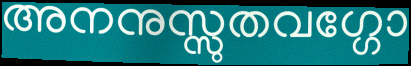
അനനുസ്സുതവഗ്ഗോ